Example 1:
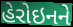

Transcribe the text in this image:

હેરોઇનને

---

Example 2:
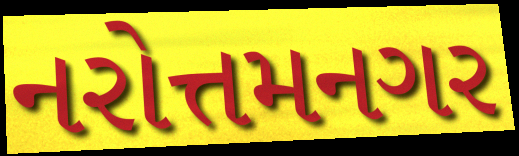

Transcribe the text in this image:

નરોત્તમનગર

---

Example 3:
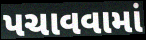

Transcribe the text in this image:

પચાવવામાં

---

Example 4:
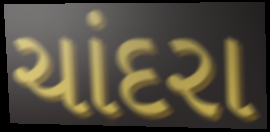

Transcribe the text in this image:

ચાંદરા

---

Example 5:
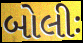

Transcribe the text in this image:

બોલીઃ